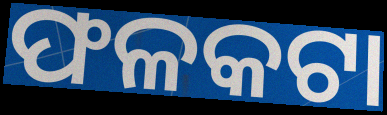
ଫଳକଟା